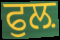
ਫੁਲ਼